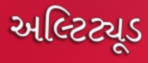
અલ્ટિટ્યૂડ